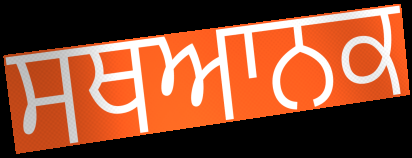
ਸਥਆਨਕ